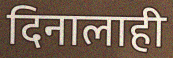
दिनालाही